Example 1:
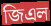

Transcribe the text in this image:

জিএল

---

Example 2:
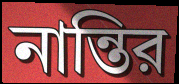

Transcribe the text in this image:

নান্তির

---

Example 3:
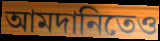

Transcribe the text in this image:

আমদানিতেও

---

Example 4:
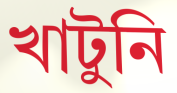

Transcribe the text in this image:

খাটুনি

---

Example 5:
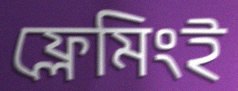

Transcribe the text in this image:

ফ্লেমিংই